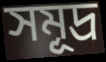
সমূদ্র